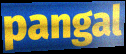
pangal